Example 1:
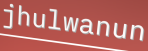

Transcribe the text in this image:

jhulwanun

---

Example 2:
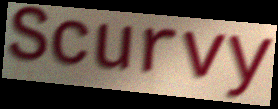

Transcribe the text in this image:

Scurvy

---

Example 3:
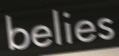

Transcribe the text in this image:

belies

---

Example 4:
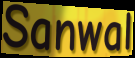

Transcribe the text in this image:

Sanwal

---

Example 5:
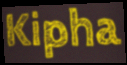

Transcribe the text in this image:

Kipha